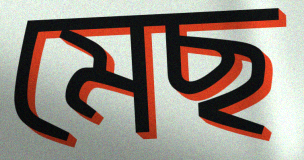
মেছ